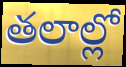
తలాల్లో